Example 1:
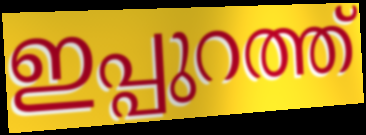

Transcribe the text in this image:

ഇപ്പുറത്ത്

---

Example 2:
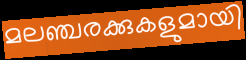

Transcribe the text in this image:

മലഞ്ചരക്കുകളുമായി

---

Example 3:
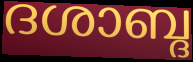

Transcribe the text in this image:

ദശാബ്ദ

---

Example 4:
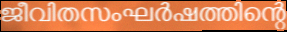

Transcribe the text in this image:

ജീവിതസംഘർഷത്തിന്റെ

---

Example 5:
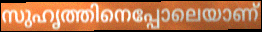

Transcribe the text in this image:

സുഹൃത്തിനെപ്പോലെയാണ്